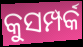
କୁସମ୍ପର୍କ